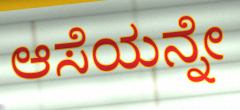
ಆಸೆಯನ್ನೇ